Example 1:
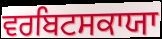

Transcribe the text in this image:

ਵਰਬਿਟਸਕਾਯਾ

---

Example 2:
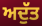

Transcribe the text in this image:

ਅਦੁੱਤ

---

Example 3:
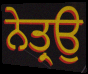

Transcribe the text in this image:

ਨੇਤ੍ਰਉ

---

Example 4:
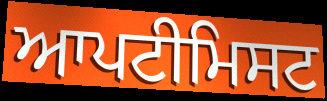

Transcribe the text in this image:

ਆਪਟੀਮਿਸਟ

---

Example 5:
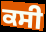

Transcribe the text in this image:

ਕਸੀ